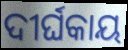
ଦୀର୍ଘକାୟ